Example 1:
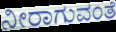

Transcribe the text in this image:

ನೀರಾಗುವಂತೆ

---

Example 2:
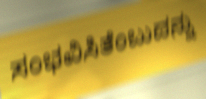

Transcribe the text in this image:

ಸಂಭವಿಸಿತೆಂಬುದನ್ನು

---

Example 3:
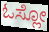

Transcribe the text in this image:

ಓಸ್ಲೋ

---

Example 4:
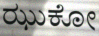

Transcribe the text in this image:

ಝುಕೋ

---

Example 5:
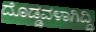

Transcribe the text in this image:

ದೊಡ್ಡವಳಾಗಿದ್ದಿ